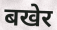
बखेर